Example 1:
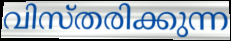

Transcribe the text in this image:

വിസ്തരിക്കുന്ന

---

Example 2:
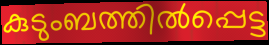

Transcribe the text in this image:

കുടുംബത്തിൽപ്പെട്ട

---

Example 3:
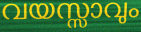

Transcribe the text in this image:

വയസ്സാവും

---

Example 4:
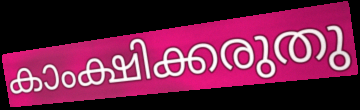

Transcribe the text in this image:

കാംക്ഷിക്കരുതു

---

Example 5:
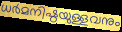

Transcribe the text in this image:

ധർമനിഷ്ഠയുള്ളവനും